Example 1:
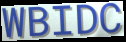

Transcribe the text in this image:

WBIDC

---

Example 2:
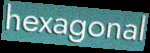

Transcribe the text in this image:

hexagonal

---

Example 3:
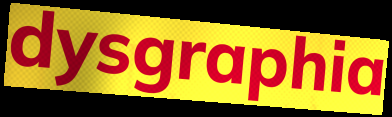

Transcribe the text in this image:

dysgraphia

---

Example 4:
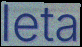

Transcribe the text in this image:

leta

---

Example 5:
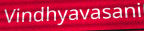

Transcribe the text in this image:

Vindhyavasani